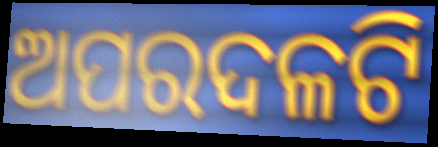
ଅପରଦଳଟି